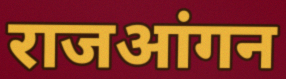
राजआंगन